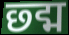
छ्द्म